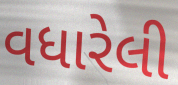
વધારેલી